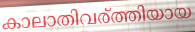
കാലാതിവര്ത്തിയായ